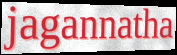
jagannatha